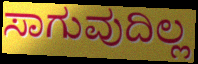
ಸಾಗುವುದಿಲ್ಲ